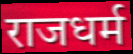
राजधर्म